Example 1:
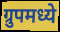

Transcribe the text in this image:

ग्रुपमध्ये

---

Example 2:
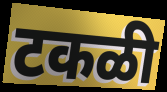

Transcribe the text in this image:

टकळी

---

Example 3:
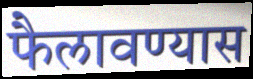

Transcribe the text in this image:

फैलावण्यास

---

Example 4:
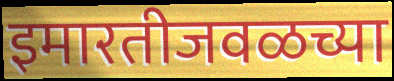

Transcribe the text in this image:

इमारतीजवळच्या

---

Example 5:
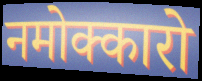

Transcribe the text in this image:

नमोक्कारो